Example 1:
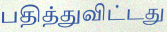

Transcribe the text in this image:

பதித்துவிட்டது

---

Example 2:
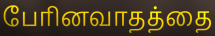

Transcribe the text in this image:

பேரினவாதத்தை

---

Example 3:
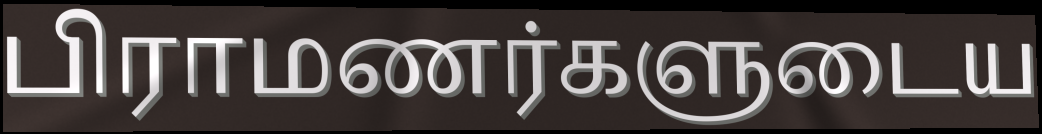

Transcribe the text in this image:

பிராமணர்களுடைய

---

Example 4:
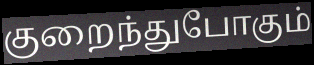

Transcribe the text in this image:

குறைந்துபோகும்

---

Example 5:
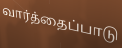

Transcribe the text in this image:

வார்த்தைப்பாடு